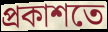
প্রকাশতে